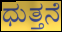
ಧುತ್ತನೆ